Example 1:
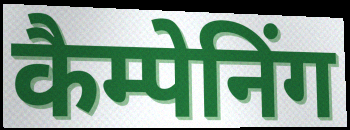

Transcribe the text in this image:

कैम्पेनिंग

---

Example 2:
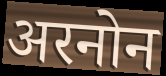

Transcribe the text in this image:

अरनोन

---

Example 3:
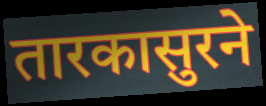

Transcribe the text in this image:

तारकासुरने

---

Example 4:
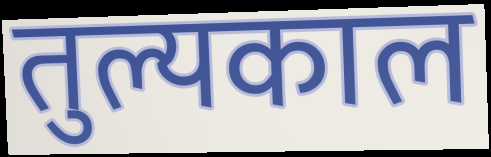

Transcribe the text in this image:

तुल्यकाल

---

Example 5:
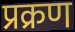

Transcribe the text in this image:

प्रक्रण